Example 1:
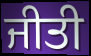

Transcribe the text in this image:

ਜੀਤੀ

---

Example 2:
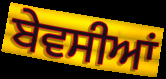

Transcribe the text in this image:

ਬੇਵਸੀਆਂ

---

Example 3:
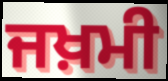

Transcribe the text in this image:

ਜਖ਼ਮੀ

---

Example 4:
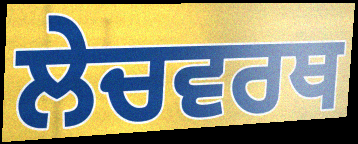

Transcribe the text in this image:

ਲੇਚਵਰਥ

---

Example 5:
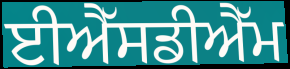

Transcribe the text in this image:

ਈਐੱਸਡੀਐੱਮ